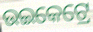
ଉଇକେଟ୍ରେ